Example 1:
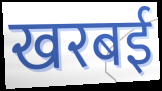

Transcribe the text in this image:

खरबई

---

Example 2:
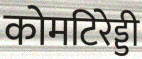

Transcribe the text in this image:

कोमटिरेड्डी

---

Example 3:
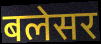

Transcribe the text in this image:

बलेसर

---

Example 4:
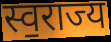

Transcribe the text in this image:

स्व॒राज्य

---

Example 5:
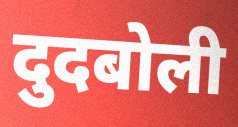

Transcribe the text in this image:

दुदबोली